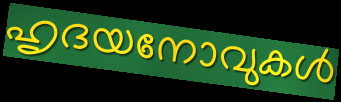
ഹൃദയനോവുകൾ